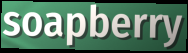
soapberry